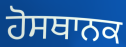
ਹੋਸਥਾਨਕ